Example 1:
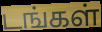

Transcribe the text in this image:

டங்கள்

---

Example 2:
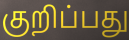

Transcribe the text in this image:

குறிப்பது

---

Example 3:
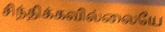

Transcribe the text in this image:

சிந்திக்கவில்லையே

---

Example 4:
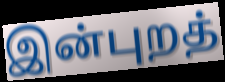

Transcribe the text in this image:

இன்புறத்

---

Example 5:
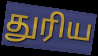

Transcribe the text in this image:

துரிய